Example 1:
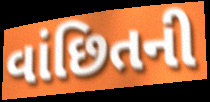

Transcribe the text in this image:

વાંછિતની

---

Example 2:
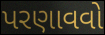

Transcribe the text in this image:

પરણાવવો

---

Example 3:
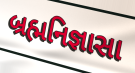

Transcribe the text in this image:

બ્રહ્મનિજ્ઞાસા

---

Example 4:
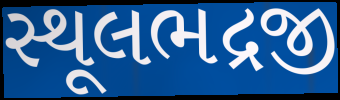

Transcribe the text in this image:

સ્થૂલભદ્રજી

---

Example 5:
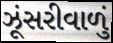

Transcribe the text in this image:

ઝૂંસરીવાળું